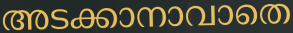
അടക്കാനാവാതെ